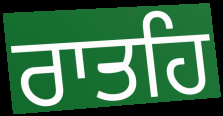
ਰਾਤਹਿ